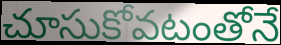
చూసుకోవటంతోనే